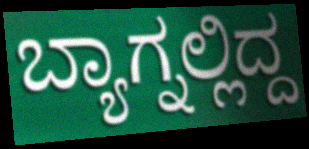
ಬ್ಯಾಗ್ನಲ್ಲಿದ್ದ